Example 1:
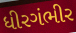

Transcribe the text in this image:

ધીરગંભીર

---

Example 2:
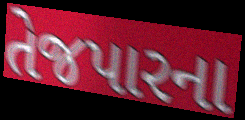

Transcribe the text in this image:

તેજપારના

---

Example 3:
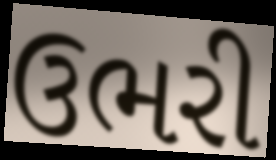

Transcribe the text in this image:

ઉભરી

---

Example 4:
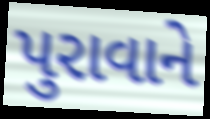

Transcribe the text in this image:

પુરાવાને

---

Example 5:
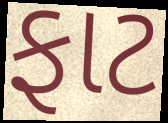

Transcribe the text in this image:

ફાટ